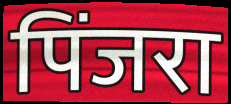
पिंजरा